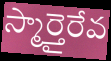
స్మార్తైరేవ